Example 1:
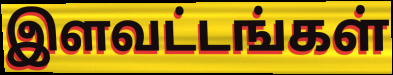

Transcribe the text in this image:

இளவட்டங்கள்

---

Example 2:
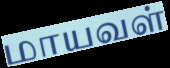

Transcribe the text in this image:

மாயவள்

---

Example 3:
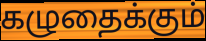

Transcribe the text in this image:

கழுதைக்கும்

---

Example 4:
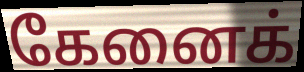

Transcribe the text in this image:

கேனைக்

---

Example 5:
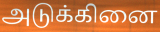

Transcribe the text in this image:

அடுக்கினை